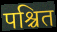
पश्चित